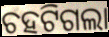
ଚହଟିଗଲା